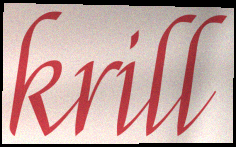
krill